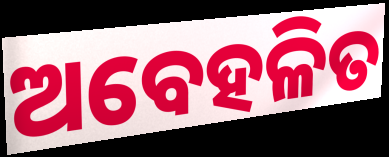
ଅବେହଳିତ